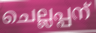
ചെല്ലപ്പന്